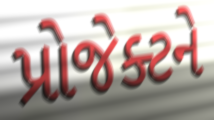
પ્રોજેક્ટને